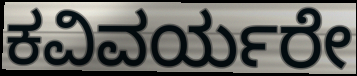
ಕವಿವರ್ಯರೇ